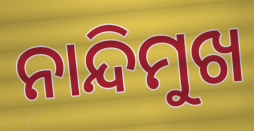
ନାନ୍ଦିମୁଖ